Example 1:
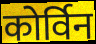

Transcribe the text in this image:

कोर्विन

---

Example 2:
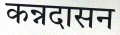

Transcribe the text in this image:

कन्नदासन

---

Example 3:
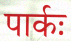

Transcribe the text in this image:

पार्कः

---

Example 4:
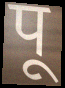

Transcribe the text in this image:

पू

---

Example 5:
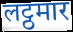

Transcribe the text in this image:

लट्ठमार